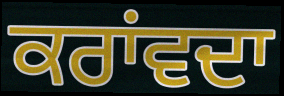
ਕਰਾਂਵਦਾ